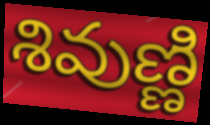
శివుణ్ణి